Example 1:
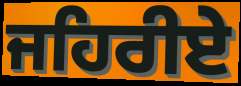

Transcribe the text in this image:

ਜਹਿਰੀਏ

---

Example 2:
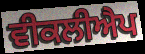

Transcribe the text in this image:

ਵੀਕਲੀਐਪ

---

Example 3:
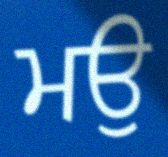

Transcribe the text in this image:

ਮਉ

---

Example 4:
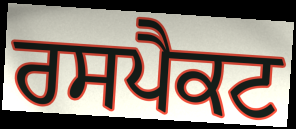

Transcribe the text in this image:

ਰਸਪੈਕਟ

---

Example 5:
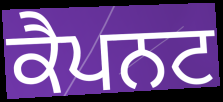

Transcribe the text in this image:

ਕੈਪਨਟ